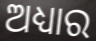
ଅଧ୍ୟାର